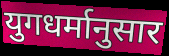
युगधर्मानुसार